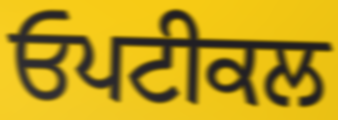
ਓਪਟੀਕਲ